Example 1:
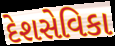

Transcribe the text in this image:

દેશસેવિકા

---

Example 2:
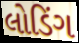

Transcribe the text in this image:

લોડિંગ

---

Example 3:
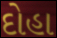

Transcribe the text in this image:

દોહા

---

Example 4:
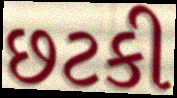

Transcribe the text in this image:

છટકી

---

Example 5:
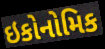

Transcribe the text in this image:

ઇકોનોમિક